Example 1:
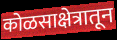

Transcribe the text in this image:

कोळसाक्षेत्रातून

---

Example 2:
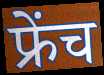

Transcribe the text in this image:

फ्रेंच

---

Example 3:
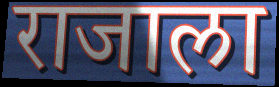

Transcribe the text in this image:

राजाला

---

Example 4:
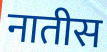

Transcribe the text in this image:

नातीस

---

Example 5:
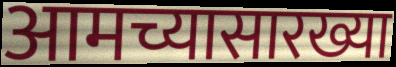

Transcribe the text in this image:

आमच्यासारख्या